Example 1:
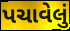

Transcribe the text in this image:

પચાવેલું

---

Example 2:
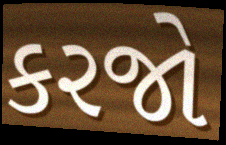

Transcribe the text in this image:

કરજો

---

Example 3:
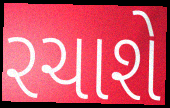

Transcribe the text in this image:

રચાશે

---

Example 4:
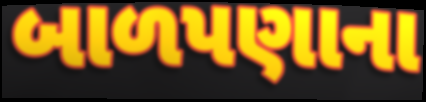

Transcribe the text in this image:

બાળપણાના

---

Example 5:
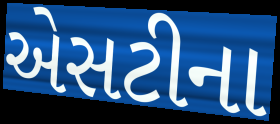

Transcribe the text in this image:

એસટીના